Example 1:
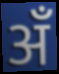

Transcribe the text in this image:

अँ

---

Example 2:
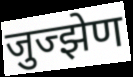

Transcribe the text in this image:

जुज्झेण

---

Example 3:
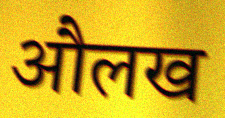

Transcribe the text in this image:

औलख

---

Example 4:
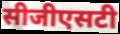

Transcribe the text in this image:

सीजीएसटी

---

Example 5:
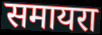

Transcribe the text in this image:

समायरा